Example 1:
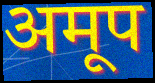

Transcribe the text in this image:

अमूप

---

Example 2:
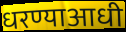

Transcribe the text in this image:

धरण्याआधी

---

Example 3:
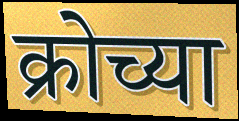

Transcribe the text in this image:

क्रोच्या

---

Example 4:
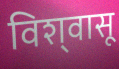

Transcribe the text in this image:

विश्वासू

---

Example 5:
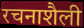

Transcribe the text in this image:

रचनाशैली